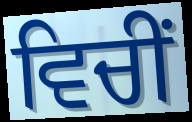
ਵਿਚੀਂ